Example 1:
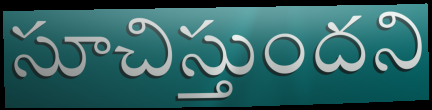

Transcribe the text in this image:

సూచిస్తుందని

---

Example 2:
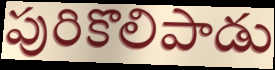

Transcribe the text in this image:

పురికొలిపాడు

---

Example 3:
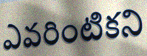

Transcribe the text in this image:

ఎవరింటికని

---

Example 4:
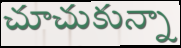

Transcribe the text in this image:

చూచుకున్నా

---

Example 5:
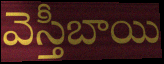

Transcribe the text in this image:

వెస్తీబాయి